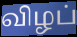
விழப்